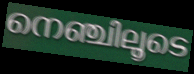
നെഞ്ചിലൂടെ